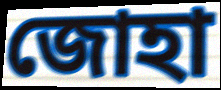
জোহা